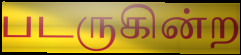
படருகின்ற